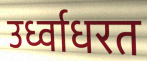
उर्ध्वाधरत